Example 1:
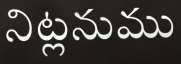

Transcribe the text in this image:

నిట్లనుము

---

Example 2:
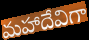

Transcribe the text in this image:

మహాదేవిగా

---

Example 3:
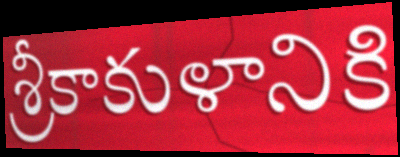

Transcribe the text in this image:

శ్రీకాకుళానికి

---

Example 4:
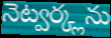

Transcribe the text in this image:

నెట్వర్క్లను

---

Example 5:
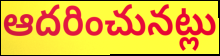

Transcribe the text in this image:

ఆదరించునట్లు